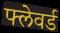
फ्लेवर्ड